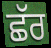
ਛੱਰ